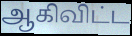
ஆகிவிட்ட